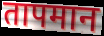
तापमान